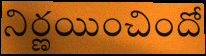
నిర్ణయించిందో